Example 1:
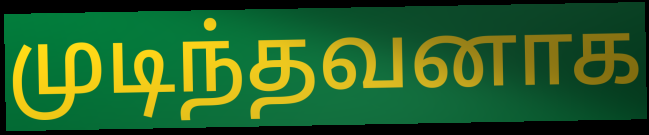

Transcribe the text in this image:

முடிந்தவனாக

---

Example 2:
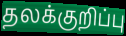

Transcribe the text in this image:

தலக்குறிப்பு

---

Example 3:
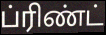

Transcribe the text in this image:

ப்ரிண்ட்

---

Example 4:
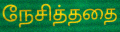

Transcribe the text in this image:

நேசித்ததை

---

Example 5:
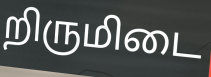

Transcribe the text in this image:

றிருமிடை